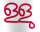
ള്ളു